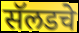
सॅलडचे